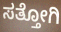
ಸತ್ತೋಗಿ